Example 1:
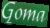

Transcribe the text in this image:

Goma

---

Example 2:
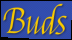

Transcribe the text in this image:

Buds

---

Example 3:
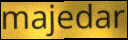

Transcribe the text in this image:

majedar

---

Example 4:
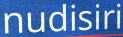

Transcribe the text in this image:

nudisiri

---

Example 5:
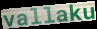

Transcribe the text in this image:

vallaku